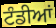
ਟੰਡੀਆਂ